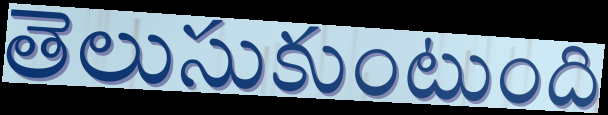
తెలుసుకుంటుంది